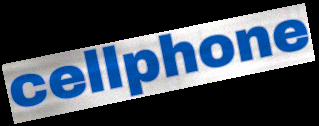
cellphone